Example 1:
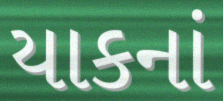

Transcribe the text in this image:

યાકનાં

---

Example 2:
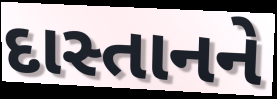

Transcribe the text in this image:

દાસ્તાનને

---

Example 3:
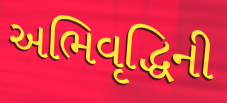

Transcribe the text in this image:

અભિવૃદ્ધિની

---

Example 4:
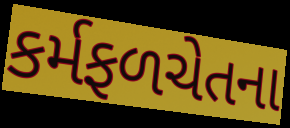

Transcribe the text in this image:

કર્મફળચેતના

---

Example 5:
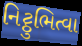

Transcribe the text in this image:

નિટ્ઠુભિત્વા